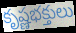
కృష్ణభక్తులు